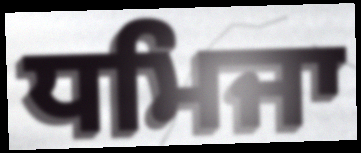
ਧਮਿਜਾ